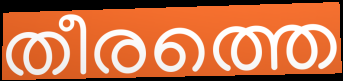
തീരത്തെ